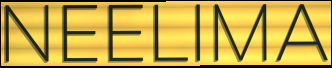
NEELIMA